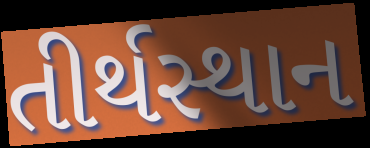
તીર્થસ્થાન